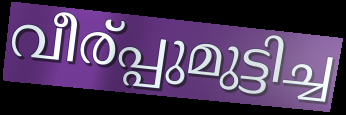
വീര്പ്പുമുട്ടിച്ച